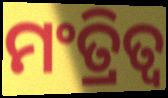
ମଂତ୍ରିତ୍ୱ